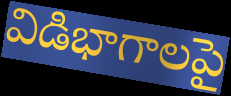
విడిభాగాలపై